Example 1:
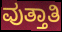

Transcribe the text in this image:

ವುತ್ತಾತಿ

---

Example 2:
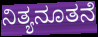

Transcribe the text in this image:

ನಿತ್ಯನೂತನೆ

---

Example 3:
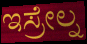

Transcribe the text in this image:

ಇಸ್ರೇಲ್ನ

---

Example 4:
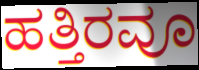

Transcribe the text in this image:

ಹತ್ತಿರವೂ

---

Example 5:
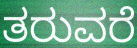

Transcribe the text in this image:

ತರುವರೆ